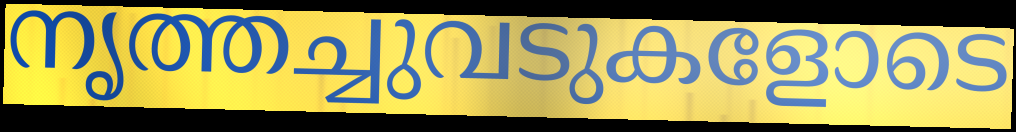
നൃത്തച്ചുവടുകളോടെ